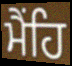
ਮੈਂਹਿ